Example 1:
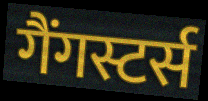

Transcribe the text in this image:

गैंगस्टर्स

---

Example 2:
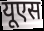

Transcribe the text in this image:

यूएस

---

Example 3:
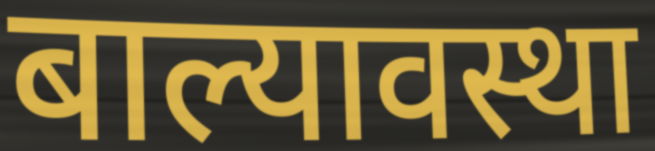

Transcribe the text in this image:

बाल्यावस्था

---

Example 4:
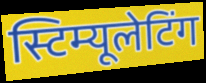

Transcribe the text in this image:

स्टिम्यूलेटिंग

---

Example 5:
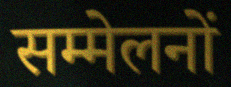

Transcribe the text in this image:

सम्मेलनों